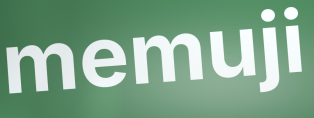
memuji